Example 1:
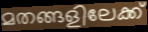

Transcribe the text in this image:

മതങ്ങളിലേക്ക്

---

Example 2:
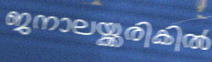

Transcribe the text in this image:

ജനാലയ്ക്കരികിൽ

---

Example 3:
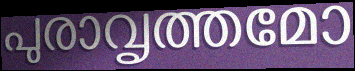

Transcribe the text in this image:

പുരാവൃത്തമോ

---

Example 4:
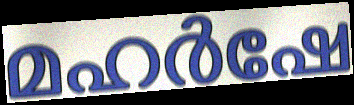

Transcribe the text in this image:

മഹർഷേ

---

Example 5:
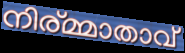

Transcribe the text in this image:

നിര്മ്മാതാവ്